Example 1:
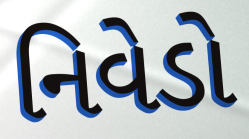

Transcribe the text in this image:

નિવેડો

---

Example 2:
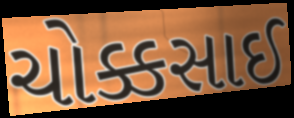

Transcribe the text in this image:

ચોક્કસાઈ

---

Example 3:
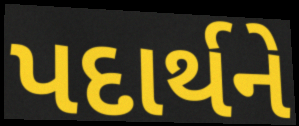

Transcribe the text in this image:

પદાર્થને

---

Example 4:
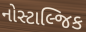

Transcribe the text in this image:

નોસ્ટાલ્જિક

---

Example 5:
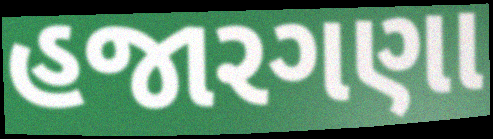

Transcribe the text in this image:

હજારગણા